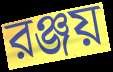
রঞ্জয়